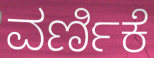
ವರ್ಣಿಕೆ